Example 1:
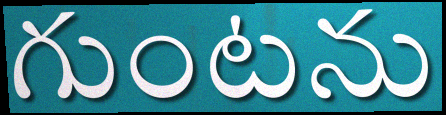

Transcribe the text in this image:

గుంటను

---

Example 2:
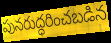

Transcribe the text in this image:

పునరుద్ధరించబడిన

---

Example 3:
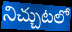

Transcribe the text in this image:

నిచ్చుటలో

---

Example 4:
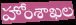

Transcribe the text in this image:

హోంశాఖల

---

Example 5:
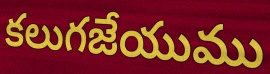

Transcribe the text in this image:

కలుగజేయుము